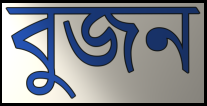
বুজন